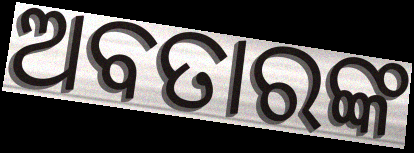
ଅବତାରଙ୍କ